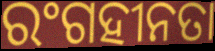
ରଂଗହୀନତା